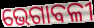
ଭେଗାବଳୀ